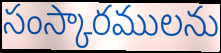
సంస్కారములను